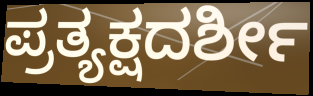
ಪ್ರತ್ಯಕ್ಷದರ್ಶೀ